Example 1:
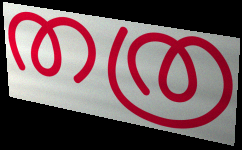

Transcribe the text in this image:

തത്ര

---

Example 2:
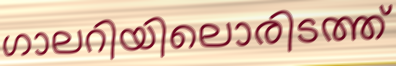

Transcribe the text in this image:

ഗാലറിയിലൊരിടത്ത്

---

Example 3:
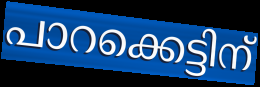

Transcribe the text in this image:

പാറക്കെട്ടിന്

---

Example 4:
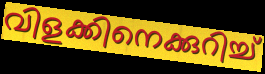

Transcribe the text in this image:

വിളക്കിനെക്കുറിച്ച്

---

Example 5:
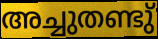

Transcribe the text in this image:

അച്ചുതണ്ടു്